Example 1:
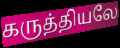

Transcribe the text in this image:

கருத்தியலே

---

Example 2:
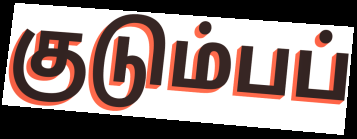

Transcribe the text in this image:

குடும்பப்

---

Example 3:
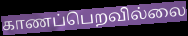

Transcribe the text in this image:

காணப்பெறவில்லை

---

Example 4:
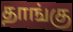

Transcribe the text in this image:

தாங்கு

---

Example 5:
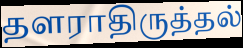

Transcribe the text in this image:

தளராதிருத்தல்